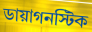
ডায়াগনস্টিক